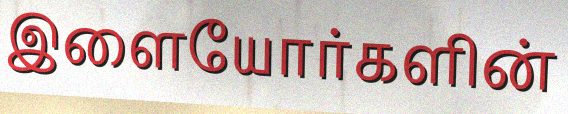
இளையோர்களின்